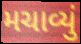
મચાવ્યું